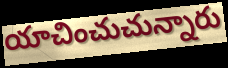
యాచించుచున్నారు